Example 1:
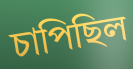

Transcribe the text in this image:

চাপিছিল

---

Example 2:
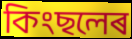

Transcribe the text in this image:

কিংছলেৰ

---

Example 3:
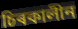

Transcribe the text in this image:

চিৰকালীন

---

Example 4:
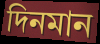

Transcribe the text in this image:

দিনমান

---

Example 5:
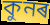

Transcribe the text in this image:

কুনৰ